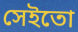
সেইতো